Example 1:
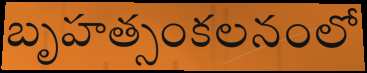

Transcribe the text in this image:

బృహత్సంకలనంలో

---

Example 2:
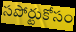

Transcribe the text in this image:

సపోర్టుకోసం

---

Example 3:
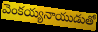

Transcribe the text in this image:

వెంకయ్యనాయుడుతో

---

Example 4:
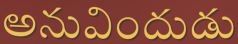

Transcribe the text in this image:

అనువిందుడు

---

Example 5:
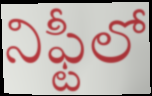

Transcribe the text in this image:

నిఫ్టీలో